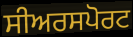
ਸੀਅਰਸਪੋਰਟ